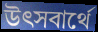
উৎসবার্থে